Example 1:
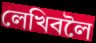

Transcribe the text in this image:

লেখিবলৈ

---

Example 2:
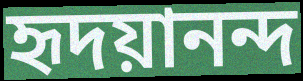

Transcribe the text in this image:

হৃদয়ানন্দ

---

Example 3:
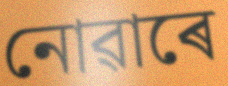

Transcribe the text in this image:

নোৱাৰে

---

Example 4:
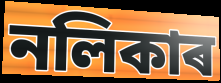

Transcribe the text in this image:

নলিকাৰ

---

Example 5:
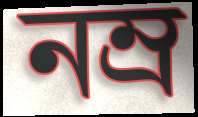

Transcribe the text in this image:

নম্ৰ